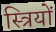
स्‍त्रियों